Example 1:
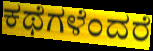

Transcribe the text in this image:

ಕಥೆಗಳೆಂದರೆ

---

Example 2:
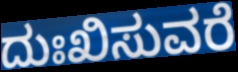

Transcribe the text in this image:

ದುಃಖಿಸುವರೆ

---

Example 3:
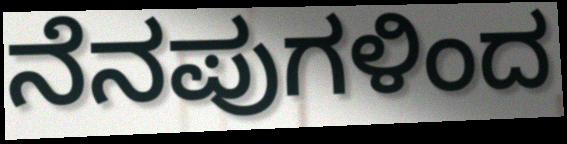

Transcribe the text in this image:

ನೆನಪುಗಳಿಂದ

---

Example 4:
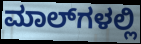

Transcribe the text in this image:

ಮಾಲ್‌ಗಳಲ್ಲಿ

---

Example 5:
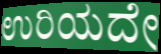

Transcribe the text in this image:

ಉರಿಯದೇ